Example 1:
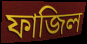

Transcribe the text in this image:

ফাজিল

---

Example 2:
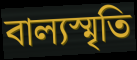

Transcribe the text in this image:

বাল্যস্মৃতি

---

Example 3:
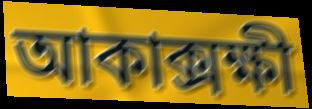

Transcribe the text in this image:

আকাক্সক্ষী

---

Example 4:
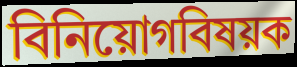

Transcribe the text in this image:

বিনিয়োগবিষয়ক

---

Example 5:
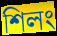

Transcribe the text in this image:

শিলং